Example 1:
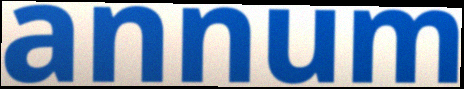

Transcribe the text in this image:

annum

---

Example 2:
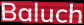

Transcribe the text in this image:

Baluch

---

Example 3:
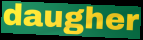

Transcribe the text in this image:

daugher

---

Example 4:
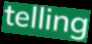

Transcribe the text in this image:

telling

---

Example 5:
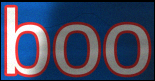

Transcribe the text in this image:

boo